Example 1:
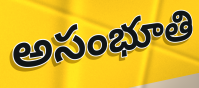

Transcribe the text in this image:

అసంభూతి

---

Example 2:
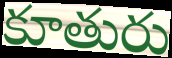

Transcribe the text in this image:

కూతురు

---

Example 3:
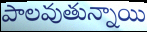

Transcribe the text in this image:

పాలవుతున్నాయి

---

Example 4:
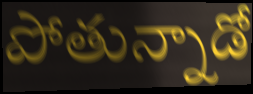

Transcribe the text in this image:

పోతున్నాడో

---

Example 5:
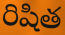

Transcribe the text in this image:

రిషిత